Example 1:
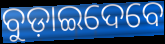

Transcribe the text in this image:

ବୁଡ଼ାଇଦେବେ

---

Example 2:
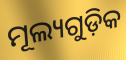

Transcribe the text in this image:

ମୂଲ୍ୟଗୁଡ଼ିକ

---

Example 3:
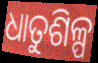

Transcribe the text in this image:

ଧାତୁଶିଳ୍ପ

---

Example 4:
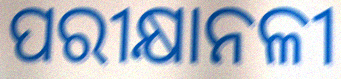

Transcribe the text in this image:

ପରୀକ୍ଷାନଳୀ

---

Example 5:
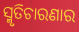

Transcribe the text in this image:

ସ୍ମୃତିଚାରଣାର